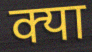
क्या